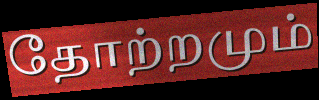
தோற்றமும்